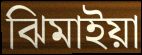
ঝিমাইয়া